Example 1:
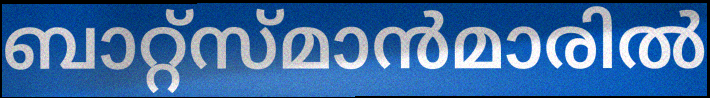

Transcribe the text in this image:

ബാറ്റ്സ്മാൻമാരിൽ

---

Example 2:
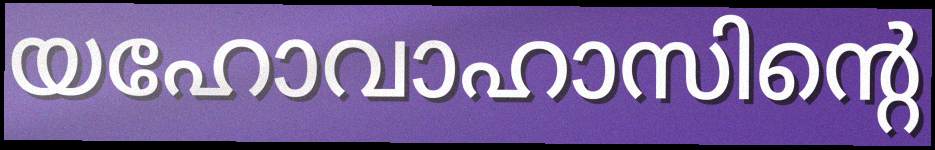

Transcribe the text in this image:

യഹോവാഹാസിന്റെ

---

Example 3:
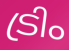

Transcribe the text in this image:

ട്രിം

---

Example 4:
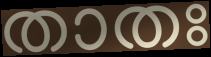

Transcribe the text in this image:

താതഃ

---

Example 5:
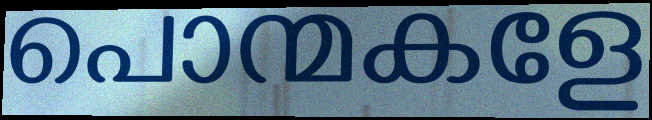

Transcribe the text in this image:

പൊന്മകളേ